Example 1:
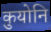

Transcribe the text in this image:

कुयोनि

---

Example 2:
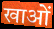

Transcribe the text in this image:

खाओं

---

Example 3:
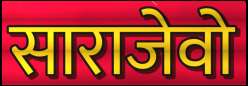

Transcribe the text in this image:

साराजेवो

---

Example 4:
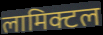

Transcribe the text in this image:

लामिक्टल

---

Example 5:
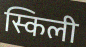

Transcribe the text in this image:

स्किली